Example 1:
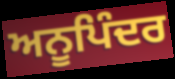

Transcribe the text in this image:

ਅਨੂਪਿੰਦਰ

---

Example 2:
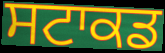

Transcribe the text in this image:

ਸਟਾਕਡ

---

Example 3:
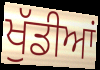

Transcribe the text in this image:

ਖੁੱਡੀਆਂ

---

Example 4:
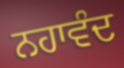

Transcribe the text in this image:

ਨਹਾਵੰਦ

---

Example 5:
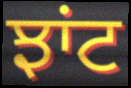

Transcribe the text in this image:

ਝਾਂਟ